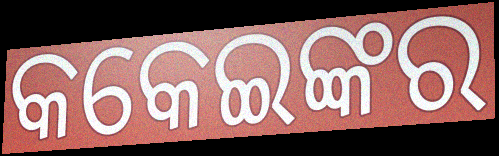
କକେଇଙ୍କର